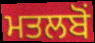
ਮਤਲਬੋਂ